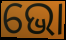
ଭୋ